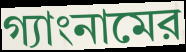
গ্যাংনামের